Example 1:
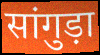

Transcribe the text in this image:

सांगुड़ा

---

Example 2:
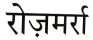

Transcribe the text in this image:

रोज़मर्रा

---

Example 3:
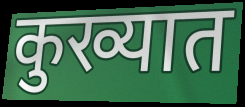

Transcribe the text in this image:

कुख्यात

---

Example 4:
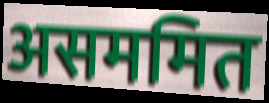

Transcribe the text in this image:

असममित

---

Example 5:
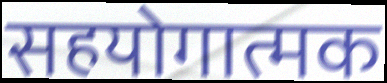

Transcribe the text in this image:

सहयोगात्मक